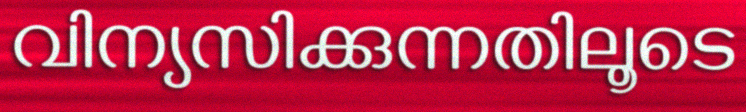
വിന്യസിക്കുന്നതിലൂടെ